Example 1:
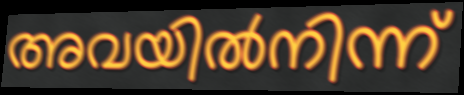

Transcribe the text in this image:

അവയിൽനിന്ന്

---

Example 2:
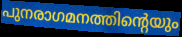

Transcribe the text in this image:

പുനരാഗമനത്തിന്റെയും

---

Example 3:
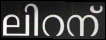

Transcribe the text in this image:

ലിറന്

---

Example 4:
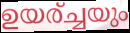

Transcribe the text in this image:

ഉയര്ച്ചയും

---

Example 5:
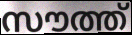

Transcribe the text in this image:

സൗത്ത്